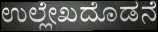
ಉಲ್ಲೇಖದೊಡನೆ